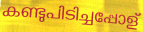
കണ്ടുപിടിച്ചപ്പോള്